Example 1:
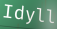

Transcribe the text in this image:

Idyll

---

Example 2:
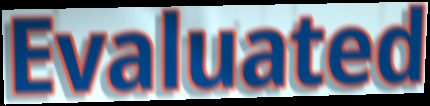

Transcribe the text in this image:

Evaluated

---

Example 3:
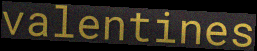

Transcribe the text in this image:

valentines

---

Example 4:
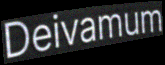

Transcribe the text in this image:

Deivamum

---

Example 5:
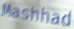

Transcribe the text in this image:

Mashhad